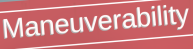
Maneuverability